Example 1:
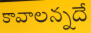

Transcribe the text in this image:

కావాలన్నదే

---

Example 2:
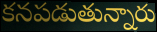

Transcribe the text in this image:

కనపడుతున్నారు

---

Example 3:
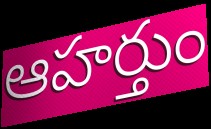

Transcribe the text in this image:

ఆహర్తుం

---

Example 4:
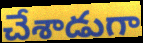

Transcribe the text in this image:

చేశాడుగా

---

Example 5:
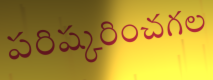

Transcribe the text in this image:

పరిష్కరించగల